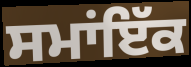
ਸਮਾਂਇੱਕ